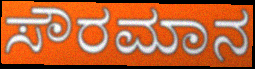
ಸೌರಮಾನ